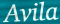
Avila